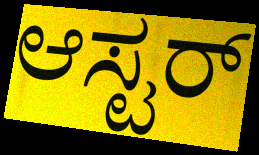
ಆಸ್ಟರ್